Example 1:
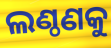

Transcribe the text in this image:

ଲଣ୍ଠଣକୁ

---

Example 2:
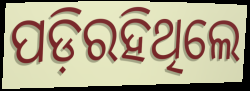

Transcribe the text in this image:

ପଡ଼ିରହିଥିଲେ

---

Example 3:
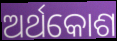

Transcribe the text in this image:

ଅର୍ଥକୋଶ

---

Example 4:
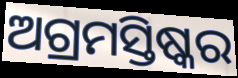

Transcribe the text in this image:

ଅଗ୍ରମସ୍ତିଷ୍କର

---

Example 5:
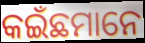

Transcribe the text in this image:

କଇଁଛମାନେ